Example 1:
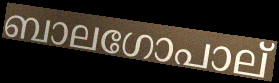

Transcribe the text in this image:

ബാലഗോപാല്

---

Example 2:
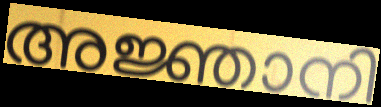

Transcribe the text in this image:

അജ്ഞാനി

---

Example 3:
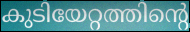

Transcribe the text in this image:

കുടിയേറ്റത്തിന്റെ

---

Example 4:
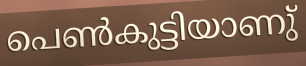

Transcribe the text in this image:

പെൺകുട്ടിയാണു്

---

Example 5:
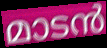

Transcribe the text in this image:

മാടൻ